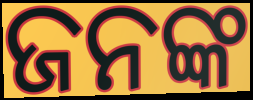
ଜନଙ୍କ